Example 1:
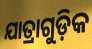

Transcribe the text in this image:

ଯାତ୍ରାଗୁଡ଼ିକ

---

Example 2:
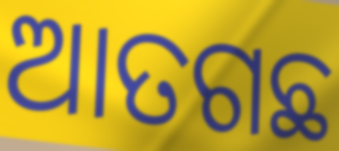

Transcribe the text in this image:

ଆତଗଛ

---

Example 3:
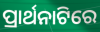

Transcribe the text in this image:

ପ୍ରାର୍ଥନାଟିରେ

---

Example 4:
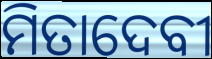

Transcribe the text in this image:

ମିତାଦେବୀ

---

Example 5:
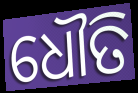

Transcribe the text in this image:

ଧୌତି